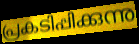
പ്രകടിപ്പിക്കുന്നു